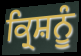
ਕ੍ਰਿਸ਼ਨੂੰ